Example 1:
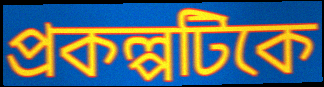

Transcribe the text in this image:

প্রকল্পটিকে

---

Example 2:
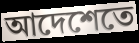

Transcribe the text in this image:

আদেশেতে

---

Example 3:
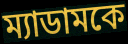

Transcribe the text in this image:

ম্যাডামকে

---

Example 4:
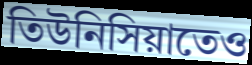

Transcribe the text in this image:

তিউনিসিয়াতেও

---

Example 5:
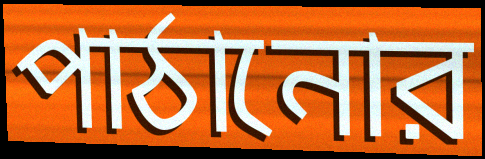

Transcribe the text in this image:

পাঠানোর